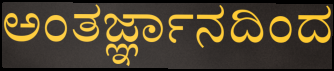
ಅಂತರ್ಜ್ಞಾನದಿಂದ